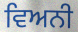
ਵਿਅਨੀ